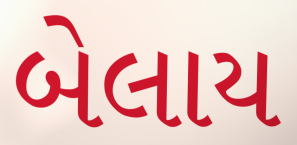
બેલાય